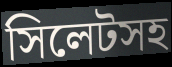
সিলেটসহ